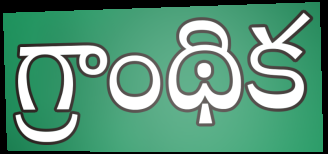
గ్రాంథిక